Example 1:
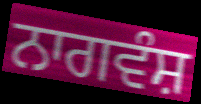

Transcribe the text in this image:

ਨਾਗਵੰਸ਼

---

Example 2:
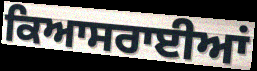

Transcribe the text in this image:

ਕਿਆਸਰਾਈਆਂ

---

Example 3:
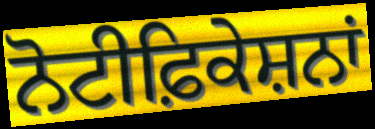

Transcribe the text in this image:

ਨੋਟੀਫ਼ਿਕੇਸ਼ਨਾਂ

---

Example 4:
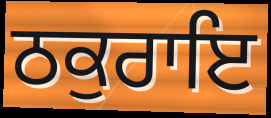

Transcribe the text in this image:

ਠਕੁਰਾਇ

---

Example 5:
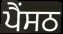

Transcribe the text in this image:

ਪੈਂਸਠ